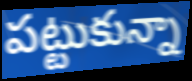
పట్టుకున్నా